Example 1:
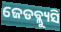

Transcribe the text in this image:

ଜେଡବ୍ଲ୍ୟୁସି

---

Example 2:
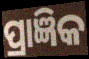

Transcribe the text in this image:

ପ୍ରାଜ୍ଞିକ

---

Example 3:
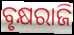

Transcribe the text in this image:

ବୃକ୍ଷରାଜି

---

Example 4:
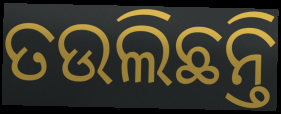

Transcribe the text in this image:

ତଉଲିଛନ୍ତି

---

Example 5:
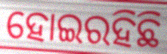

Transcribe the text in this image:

ହୋଇରହିଛି